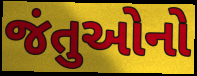
જંતુઓનો